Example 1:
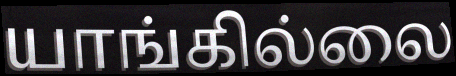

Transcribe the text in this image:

யாங்கில்லை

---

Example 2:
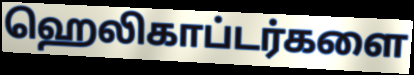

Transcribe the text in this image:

ஹெலிகாப்டர்களை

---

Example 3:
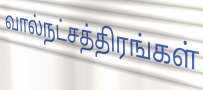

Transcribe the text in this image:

வால்நட்சத்திரங்கள்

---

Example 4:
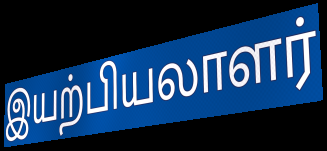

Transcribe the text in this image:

இயற்பியலாளர்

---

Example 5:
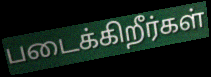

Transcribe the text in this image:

படைக்கிறீர்கள்